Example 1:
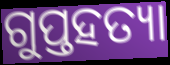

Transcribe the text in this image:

ଗୁପ୍ତହତ୍ୟା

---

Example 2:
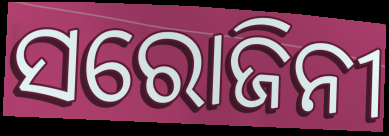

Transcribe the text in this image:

ସରୋଜିନୀ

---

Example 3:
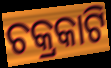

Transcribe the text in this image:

ଚକ୍ରକାଟି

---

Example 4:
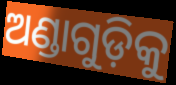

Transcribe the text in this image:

ଅଣ୍ଡାଗୁଡ଼ିକୁ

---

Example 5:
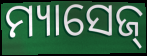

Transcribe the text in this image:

ମ୍ୟାସେଜ୍